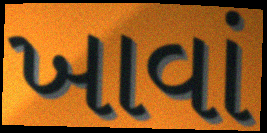
ખાવાં